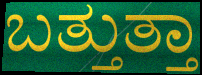
ಬತ್ತುತ್ತಾ